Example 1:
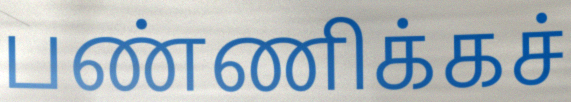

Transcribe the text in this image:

பண்ணிக்கச்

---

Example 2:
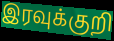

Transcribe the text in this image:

இரவுக்குறி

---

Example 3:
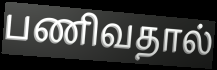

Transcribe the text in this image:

பணிவதால்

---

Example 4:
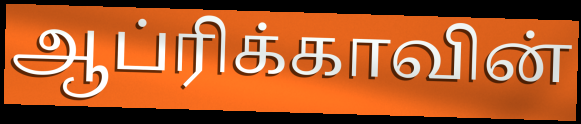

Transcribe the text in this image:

ஆப்ரிக்காவின்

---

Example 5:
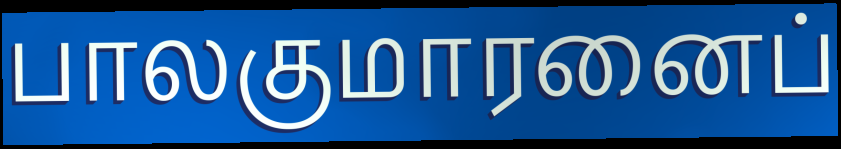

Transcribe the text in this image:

பாலகுமாரனைப்